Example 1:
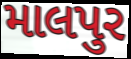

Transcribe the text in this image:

માલપુર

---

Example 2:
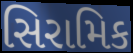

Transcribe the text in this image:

સિરામિક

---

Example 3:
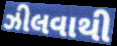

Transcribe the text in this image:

ઝીલવાથી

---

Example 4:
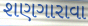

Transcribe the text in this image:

શણગારાવા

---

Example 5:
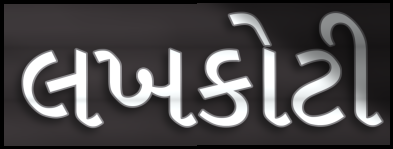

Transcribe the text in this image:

લખકોટી